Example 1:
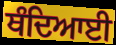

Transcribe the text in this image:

ਥੰਦਿਆਈ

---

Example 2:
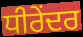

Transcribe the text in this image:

ਧੀਰੇਂਦਰ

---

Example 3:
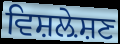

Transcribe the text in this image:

ਵਿਸ਼ਲ਼ੇਸ਼ਣ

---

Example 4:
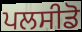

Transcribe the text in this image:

ਪਲਸੀਡੋ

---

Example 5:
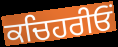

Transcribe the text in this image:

ਕਚਿਹਰੀਓਂ